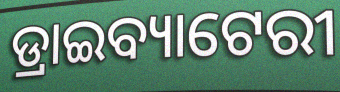
ଡ୍ରାଇବ୍ୟାଟେରୀ